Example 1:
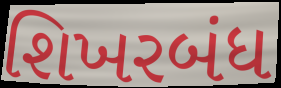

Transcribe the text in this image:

શિખરબંધ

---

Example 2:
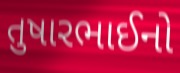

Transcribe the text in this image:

તુષારભાઈનો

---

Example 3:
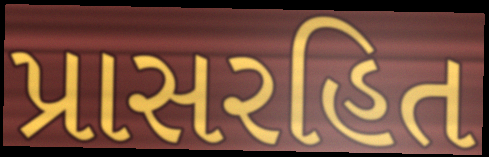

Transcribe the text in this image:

પ્રાસરહિત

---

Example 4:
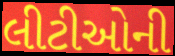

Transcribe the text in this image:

લીટીઓની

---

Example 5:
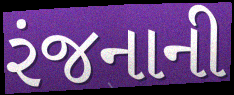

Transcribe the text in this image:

રંજનાની